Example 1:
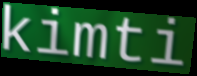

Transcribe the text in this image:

kimti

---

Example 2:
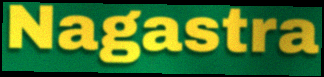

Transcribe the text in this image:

Nagastra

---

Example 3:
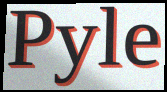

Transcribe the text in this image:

Pyle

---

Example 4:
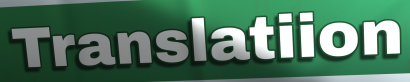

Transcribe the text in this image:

Translatiion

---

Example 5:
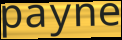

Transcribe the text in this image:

payne